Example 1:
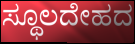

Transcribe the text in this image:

ಸ್ಥೂಲದೇಹದ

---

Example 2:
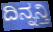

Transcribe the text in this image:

ದಿನ್ನನ್ತಿ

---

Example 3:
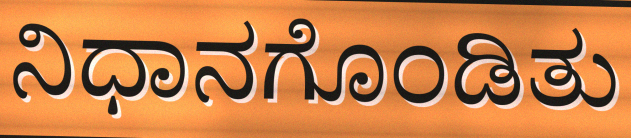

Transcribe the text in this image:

ನಿಧಾನಗೊಂಡಿತು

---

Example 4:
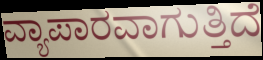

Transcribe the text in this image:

ವ್ಯಾಪಾರವಾಗುತ್ತಿದೆ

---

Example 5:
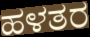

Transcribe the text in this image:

ಹಳತರ